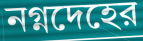
নগ্নদেহের